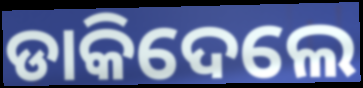
ଡାକିଦେଲେ